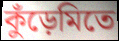
কুঁড়েমিতে